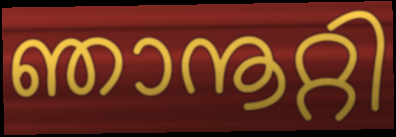
ഞാനൂറ്റി